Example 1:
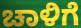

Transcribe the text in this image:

ಚಾಳಿಗೆ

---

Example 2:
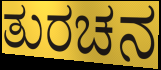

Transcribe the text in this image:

ತುರಚನ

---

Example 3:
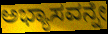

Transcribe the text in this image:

ಅಭ್ಯಾಸವನ್ನೇ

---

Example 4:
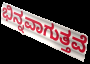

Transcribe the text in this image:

ಭಿನ್ನವಾಗುತ್ತವೆ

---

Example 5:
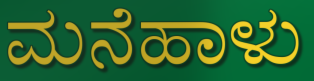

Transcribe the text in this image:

ಮನೆಹಾಳು